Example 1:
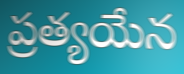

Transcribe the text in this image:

ప్రత్యయేన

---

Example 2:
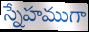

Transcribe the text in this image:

స్నేహముగా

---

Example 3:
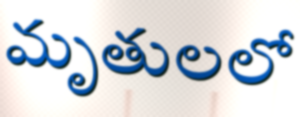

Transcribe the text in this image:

మృతులలో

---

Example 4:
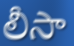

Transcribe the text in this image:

లీసా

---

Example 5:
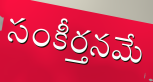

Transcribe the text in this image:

సంకీర్తనమే